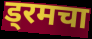
ड्रमचा